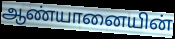
ஆண்யானையின்